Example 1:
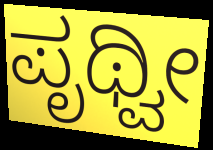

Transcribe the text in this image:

ಪೃಥ್ವೀ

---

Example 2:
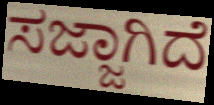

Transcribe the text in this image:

ಸಜ್ಜಾಗಿದೆ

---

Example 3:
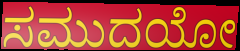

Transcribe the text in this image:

ಸಮುದಯೋ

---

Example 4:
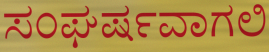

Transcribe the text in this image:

ಸಂಘರ್ಷವಾಗಲಿ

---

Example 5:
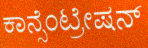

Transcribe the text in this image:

ಕಾನ್ಸೆಂಟ್ರೇಷನ್